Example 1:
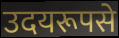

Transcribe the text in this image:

उदयरूपसे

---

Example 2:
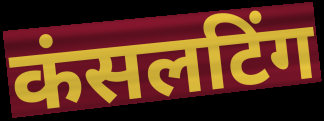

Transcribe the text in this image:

कंसलटिंग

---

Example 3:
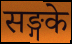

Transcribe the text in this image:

सङ्गके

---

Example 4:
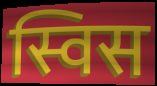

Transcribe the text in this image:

स्विस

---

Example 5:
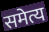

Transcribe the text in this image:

समेत्य